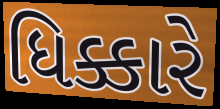
ધિક્કારે